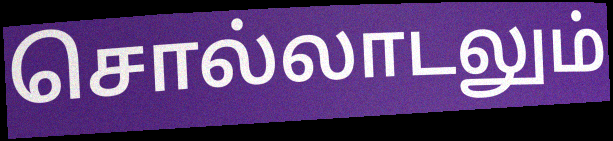
சொல்லாடலும்